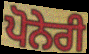
ਪੋਨੇਰੀ